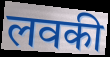
लवकी